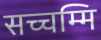
सच्चम्मि